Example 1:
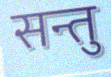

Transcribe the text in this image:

सन्‍तु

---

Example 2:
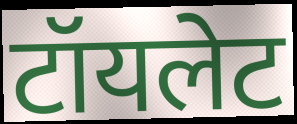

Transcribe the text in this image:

टॉयलेट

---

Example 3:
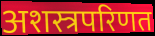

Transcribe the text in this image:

अशस्त्रपरिणत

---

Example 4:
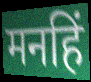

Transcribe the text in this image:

मनहिं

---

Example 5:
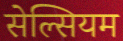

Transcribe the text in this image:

सेल्सियम